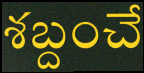
శబ్దంచే